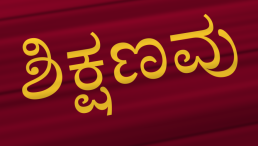
ಶಿಕ್ಷಣವು